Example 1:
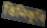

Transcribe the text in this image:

তিনিকুৰি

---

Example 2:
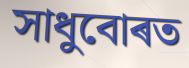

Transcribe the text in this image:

সাধুবোৰত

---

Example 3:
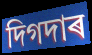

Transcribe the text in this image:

দিগদাৰ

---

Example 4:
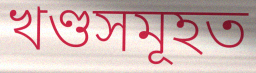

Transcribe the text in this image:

খণ্ডসমূহত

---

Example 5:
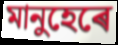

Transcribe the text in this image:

মানুহেৰে